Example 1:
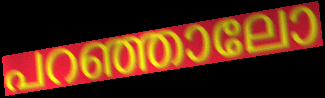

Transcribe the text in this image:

പറഞ്ഞാലോ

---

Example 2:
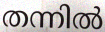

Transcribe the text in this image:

തന്നിൽ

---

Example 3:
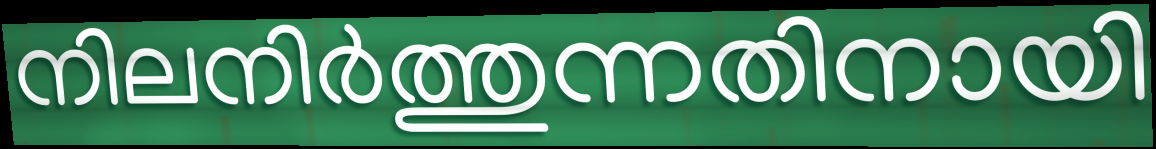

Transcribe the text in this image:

നിലനിർത്തുന്നതിനായി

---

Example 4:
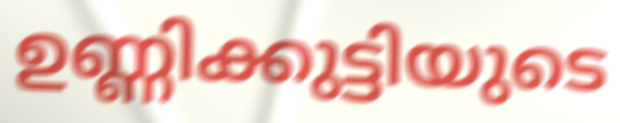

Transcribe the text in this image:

ഉണ്ണിക്കുട്ടിയുടെ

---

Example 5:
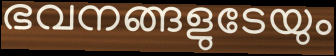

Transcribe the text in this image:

ഭവനങ്ങളുടേയും